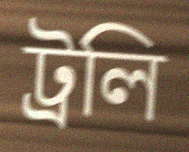
ট্রলি